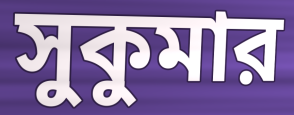
সুকুমার